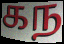
கந